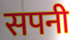
सपनी